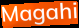
Magahi